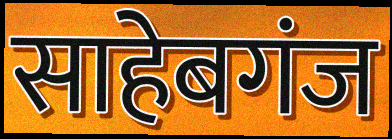
साहेबगंज